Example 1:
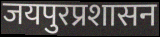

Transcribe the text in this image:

जयपुरप्रशासन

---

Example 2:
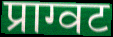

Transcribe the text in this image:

प्राग्वट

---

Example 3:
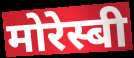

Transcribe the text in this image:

मोरेस्बी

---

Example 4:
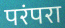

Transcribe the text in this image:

परंपरा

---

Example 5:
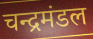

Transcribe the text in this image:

चन्द्रमंडल